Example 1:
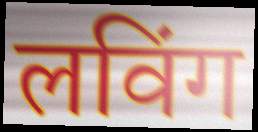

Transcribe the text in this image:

लविंग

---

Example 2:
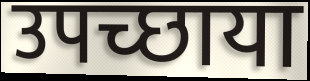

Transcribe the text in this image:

उपच्छाया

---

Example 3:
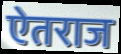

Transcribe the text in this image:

ऐतराज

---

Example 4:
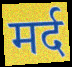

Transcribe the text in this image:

मर्द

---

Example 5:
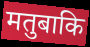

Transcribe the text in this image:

मतुबाकि